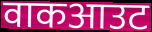
वाकआउट